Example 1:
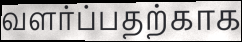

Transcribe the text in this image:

வளர்ப்பதற்காக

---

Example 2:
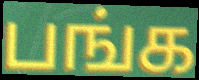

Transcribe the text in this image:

பங்க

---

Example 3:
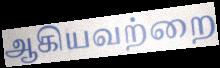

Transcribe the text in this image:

ஆகியவற்றை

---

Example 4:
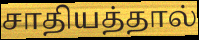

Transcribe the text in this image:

சாதியத்தால்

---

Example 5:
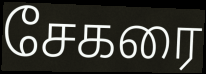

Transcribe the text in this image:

சேகரை